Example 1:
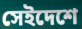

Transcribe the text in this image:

সেইদেশে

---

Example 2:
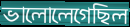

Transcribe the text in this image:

ভালোলেগেছিল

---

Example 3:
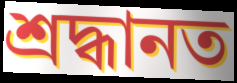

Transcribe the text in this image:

শ্রদ্ধানত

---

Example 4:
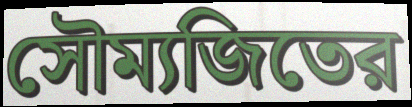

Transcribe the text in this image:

সৌম্যজিতের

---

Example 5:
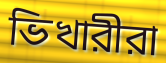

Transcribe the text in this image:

ভিখারীরা